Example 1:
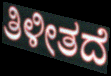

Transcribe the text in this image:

ತಿಳೀತದೆ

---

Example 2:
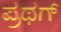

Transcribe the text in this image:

ಪ್ರಥಗ್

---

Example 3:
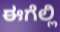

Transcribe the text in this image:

ಈಗೆಲ್ಲಿ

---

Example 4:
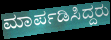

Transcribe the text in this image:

ಮಾರ್ಪಡಿಸಿದ್ದರು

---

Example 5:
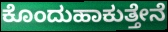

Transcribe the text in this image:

ಕೊಂದುಹಾಕುತ್ತೇನೆ